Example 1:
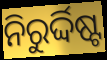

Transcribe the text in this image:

ନିରୁର୍ଦ୍ଦିଷ୍ଟ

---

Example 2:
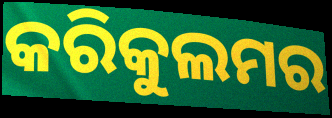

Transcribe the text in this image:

କରିକୁଲମର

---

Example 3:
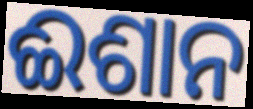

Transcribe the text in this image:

ଈଶାନ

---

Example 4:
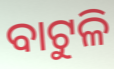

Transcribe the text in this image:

ବାଟୁଳି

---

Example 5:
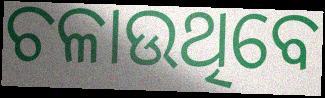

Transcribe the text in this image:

ଚଳାଉଥିବେ